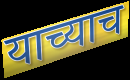
याच्याच